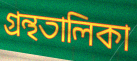
গ্ৰন্থতালিকা